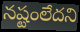
నష్టంలేదని